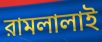
রামলালাই